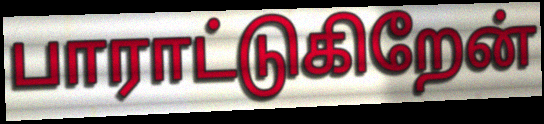
பாராட்டுகிறேன்